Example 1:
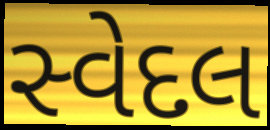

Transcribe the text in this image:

સ્વેદલ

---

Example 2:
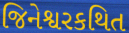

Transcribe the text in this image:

જિનેશ્વરકથિત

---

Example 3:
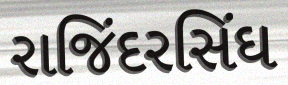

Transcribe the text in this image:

રાજિંદરસિંઘ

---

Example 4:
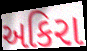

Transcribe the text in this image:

અકિરા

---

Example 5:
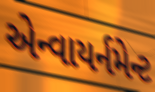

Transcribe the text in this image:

એન્વાયર્નમેન્ટ